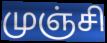
முஞ்சி